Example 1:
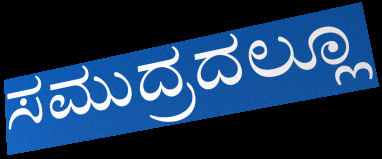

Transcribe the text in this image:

ಸಮುದ್ರದಲ್ಲೂ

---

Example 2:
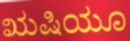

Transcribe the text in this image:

ಋಷಿಯೂ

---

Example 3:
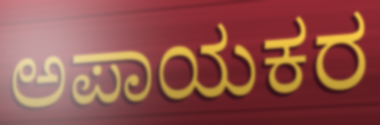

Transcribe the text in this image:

ಅಪಾಯಕರ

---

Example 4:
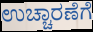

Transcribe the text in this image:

ಉಚ್ಚಾರಣೆಗೆ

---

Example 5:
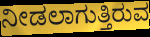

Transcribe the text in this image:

ನೀಡಲಾಗುತ್ತಿರುವ